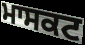
ਮਾਸਕਟ